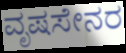
ವೃಷಸೇನರ